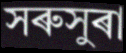
সৰুসুৰা